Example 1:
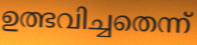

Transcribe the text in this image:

ഉത്ഭവിച്ചതെന്ന്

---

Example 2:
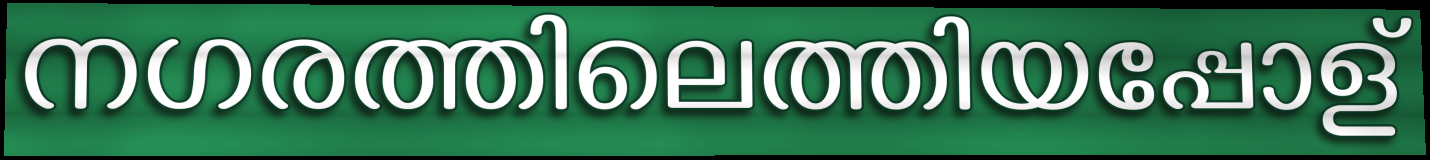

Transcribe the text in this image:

നഗരത്തിലെത്തിയപ്പോള്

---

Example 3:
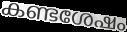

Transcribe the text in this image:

കണ്ടശേഷം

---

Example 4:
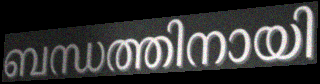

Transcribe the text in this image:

ബന്ധത്തിനായി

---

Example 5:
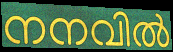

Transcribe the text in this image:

നനവിൽ